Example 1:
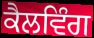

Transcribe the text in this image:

ਕੈਲਵਿੰਗ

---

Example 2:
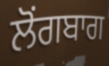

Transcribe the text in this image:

ਲੋਂਗਬਾਗ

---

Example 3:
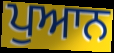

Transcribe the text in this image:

ਪੁਆਨ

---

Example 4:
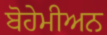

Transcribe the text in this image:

ਬੋਹੇਮੀਅਨ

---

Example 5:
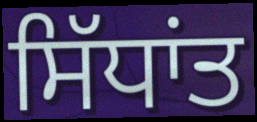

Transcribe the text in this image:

ਸਿੱਧਾਂਤ